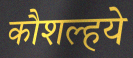
कौशल्हये